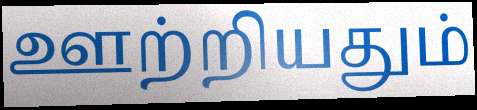
ஊற்றியதும்